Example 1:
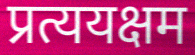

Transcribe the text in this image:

प्रत्ययक्षम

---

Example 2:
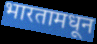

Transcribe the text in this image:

भारतामधून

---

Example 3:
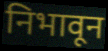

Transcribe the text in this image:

निभावून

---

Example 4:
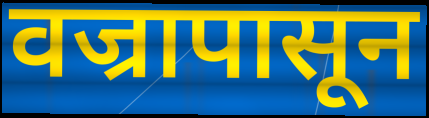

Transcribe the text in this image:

वज्रापासून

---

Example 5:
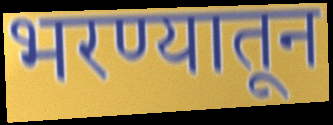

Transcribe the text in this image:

भरण्यातून